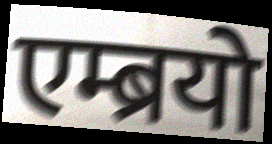
एम्ब्रयो